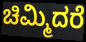
ಚಿಮ್ಮಿದರೆ